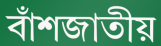
বাঁশজাতীয়